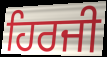
ਹਿਰਜੀ